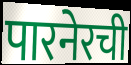
पारनेरची